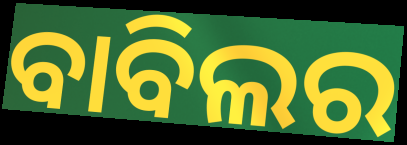
ବାବିଲର